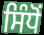
ਸਿੰਧੋਂ